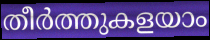
തീർത്തുകളയാം